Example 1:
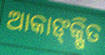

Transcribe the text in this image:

ଆକାଙ୍‍କ୍ଷିତ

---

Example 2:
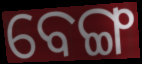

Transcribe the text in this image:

ବେଙ୍ଗ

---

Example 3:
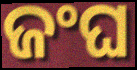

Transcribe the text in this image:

ଜଂଘ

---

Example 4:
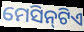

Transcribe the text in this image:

ମେସିନ୍‌ଟିଏ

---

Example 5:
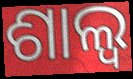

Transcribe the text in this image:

ଶାଲ୍ୱ